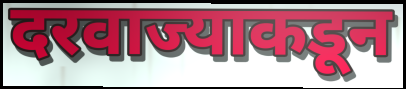
दरवाज्याकडून